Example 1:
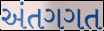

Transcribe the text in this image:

અંતગગત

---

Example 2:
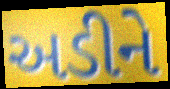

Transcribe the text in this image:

અડીને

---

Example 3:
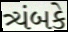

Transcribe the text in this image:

ત્ર્યંબકે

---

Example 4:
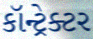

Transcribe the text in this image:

કૉન્ટ્રેક્ટર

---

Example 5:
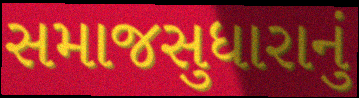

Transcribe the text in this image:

સમાજસુધારાનું